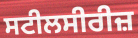
ਸਟੀਲਸੀਰੀਜ਼